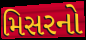
મિસરનો